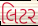
લિટર